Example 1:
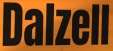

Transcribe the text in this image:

Dalzell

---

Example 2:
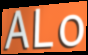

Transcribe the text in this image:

ALo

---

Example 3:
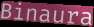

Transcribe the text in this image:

Binaura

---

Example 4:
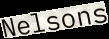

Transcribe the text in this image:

Nelsons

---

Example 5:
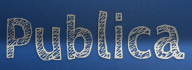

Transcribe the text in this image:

Publica